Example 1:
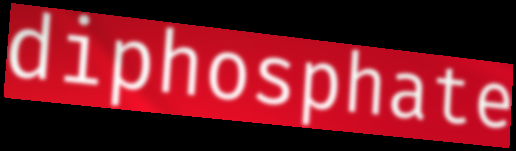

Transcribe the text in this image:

diphosphate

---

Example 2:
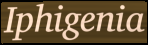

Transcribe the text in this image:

Iphigenia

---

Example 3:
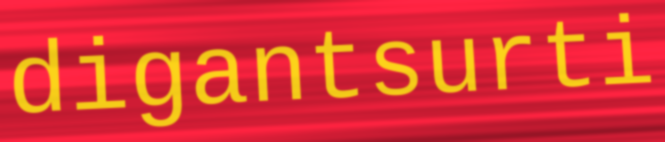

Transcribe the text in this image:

digantsurti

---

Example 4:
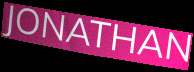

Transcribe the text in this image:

JONATHAN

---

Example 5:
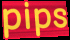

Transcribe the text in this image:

pips